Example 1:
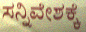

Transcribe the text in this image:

ಸನ್ನಿವೇಶಕ್ಕೆ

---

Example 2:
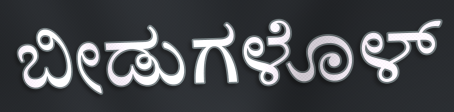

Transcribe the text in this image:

ಬೀಡುಗಳೊಳ್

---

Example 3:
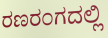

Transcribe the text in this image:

ರಣರಂಗದಲ್ಲಿ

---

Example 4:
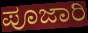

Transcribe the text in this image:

ಪೂಜಾರಿ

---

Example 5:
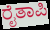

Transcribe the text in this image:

ರೈತಾಪಿ